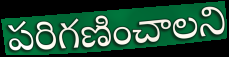
పరిగణించాలని